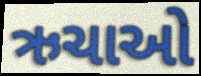
ઋચાઓ